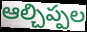
ఆల్చిప్పల